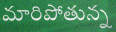
మారిపోతున్న